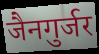
जैनगुर्जर